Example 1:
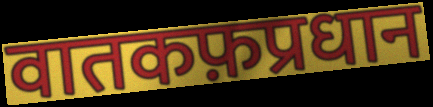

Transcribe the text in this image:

वातकफ़प्रधान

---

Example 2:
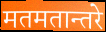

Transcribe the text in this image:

मतमतान्तरे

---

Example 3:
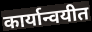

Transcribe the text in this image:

कार्यान्वयीत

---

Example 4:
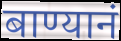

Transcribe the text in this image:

बाण्यानं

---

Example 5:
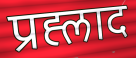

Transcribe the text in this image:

प्रह्लाद